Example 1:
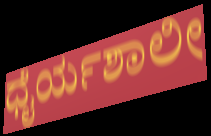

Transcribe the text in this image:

ಧೈರ್ಯಶಾಲೀ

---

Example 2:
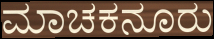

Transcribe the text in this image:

ಮಾಚಕನೂರು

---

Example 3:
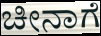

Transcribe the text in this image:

ಚೀನಾಗೆ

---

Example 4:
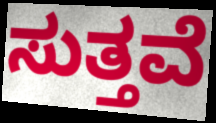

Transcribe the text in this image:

ಸುತ್ತವೆ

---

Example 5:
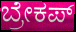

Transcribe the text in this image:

ಬ್ರೇಕಪ್